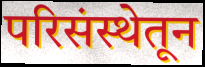
परिसंस्थेतून